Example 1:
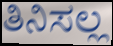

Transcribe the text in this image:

ತಿನಿಸಲ್ಲ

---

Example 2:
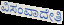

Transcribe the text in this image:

ವಿಸಂವಾದೇತಿ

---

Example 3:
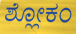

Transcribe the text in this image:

ಶ್ಲೋಕಂ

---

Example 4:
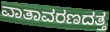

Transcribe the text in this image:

ವಾತಾವರಣದತ್ತ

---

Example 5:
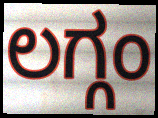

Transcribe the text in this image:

ಲಗ್ಗಂ